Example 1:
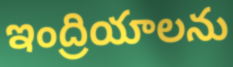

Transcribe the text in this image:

ఇంద్రియాలను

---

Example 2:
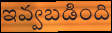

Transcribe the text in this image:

ఇవ్వబడింది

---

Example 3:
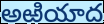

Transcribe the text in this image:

అఱియాద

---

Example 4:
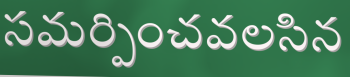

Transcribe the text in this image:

సమర్పించవలసిన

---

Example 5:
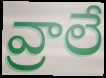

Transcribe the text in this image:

వ్రాలే